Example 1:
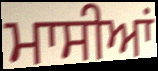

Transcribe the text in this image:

ਮਾਸੀਆਂ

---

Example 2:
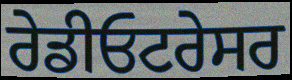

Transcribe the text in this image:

ਰੇਡੀਓਟਰੇਸਰ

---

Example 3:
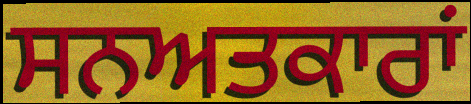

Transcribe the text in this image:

ਸਨਅਤਕਾਰਾਂ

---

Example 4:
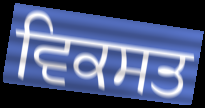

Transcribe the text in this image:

ਵਿਕਸਤ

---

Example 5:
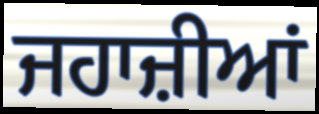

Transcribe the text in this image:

ਜਹਾਜ਼ੀਆਂ